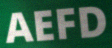
AEFD